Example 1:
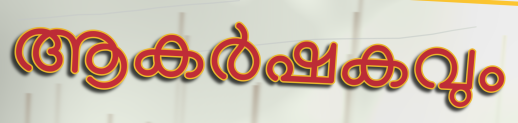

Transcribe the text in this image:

ആകർഷകവും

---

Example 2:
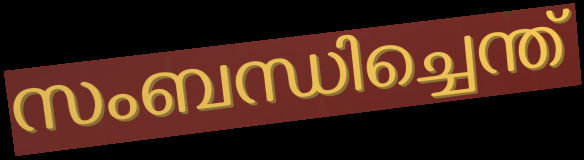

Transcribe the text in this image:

സംബന്ധിച്ചെന്ത്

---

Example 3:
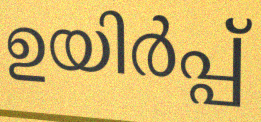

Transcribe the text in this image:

ഉയിർപ്പ്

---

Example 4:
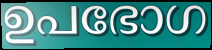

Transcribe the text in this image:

ഉപഭോഗ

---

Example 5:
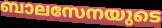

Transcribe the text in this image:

ബാലസേനയുടെ